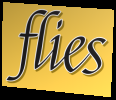
flies